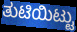
ತುಟಿಯಿಟ್ಟು